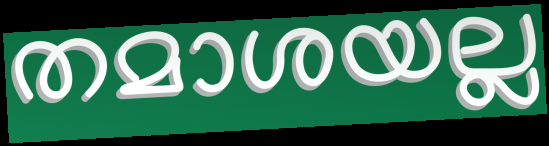
തമാശയല്ല